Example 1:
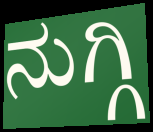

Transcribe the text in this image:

ನುಗ್ಗಿ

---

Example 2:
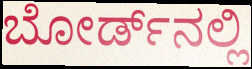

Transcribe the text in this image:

ಬೋರ್ಡ್‌ನಲ್ಲಿ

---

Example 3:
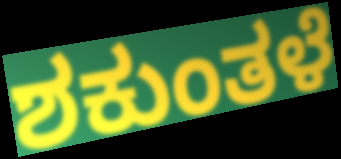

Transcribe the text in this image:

ಶಕುಂತಳೆ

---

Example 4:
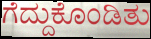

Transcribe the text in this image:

ಗೆದ್ದುಕೊಂಡಿತು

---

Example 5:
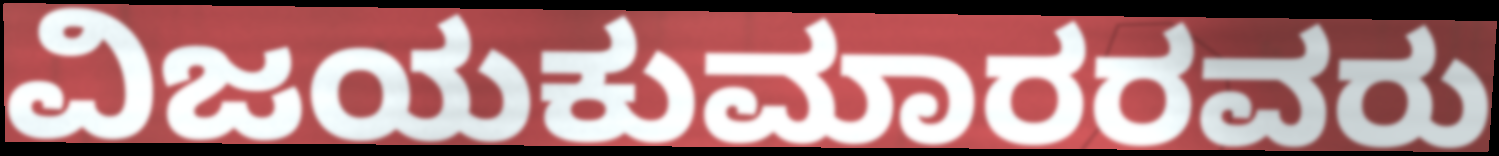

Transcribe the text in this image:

ವಿಜಯಕುಮಾರರವರು